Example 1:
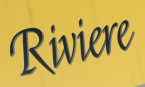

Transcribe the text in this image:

Riviere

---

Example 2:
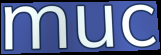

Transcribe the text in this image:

muc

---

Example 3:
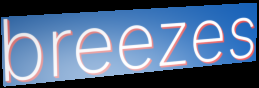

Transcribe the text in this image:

breezes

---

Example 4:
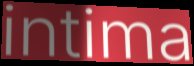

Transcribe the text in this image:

intima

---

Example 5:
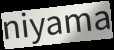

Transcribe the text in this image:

niyama